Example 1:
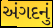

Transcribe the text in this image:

અંગદનું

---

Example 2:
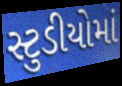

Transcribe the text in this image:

સ્ટુડીયોમાં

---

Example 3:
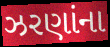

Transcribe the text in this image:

ઝરણાંના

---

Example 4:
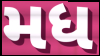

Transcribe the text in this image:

મધ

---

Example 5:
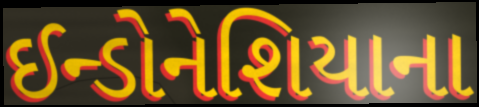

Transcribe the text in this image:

ઈન્ડોનેશિયાના